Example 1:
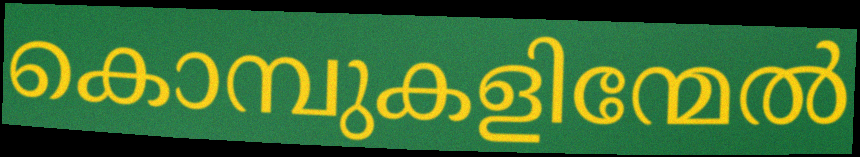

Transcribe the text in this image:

കൊമ്പുകളിന്മേൽ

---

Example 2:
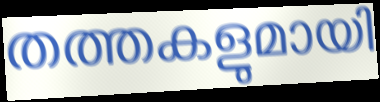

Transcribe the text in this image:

തത്തകളുമായി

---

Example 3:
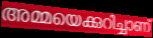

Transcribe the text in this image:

അമ്മയെക്കുറിച്ചാണ്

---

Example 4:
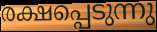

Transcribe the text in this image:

രക്ഷപ്പെടുന്നു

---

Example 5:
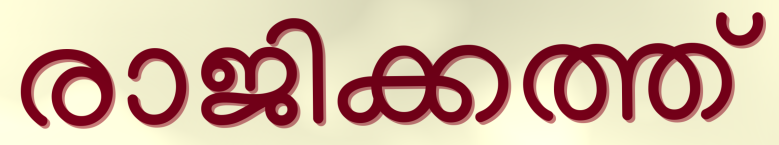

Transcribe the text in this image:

രാജിക്കത്ത്